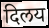
दिलय